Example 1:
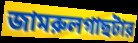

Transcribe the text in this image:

জামরুলগাছটার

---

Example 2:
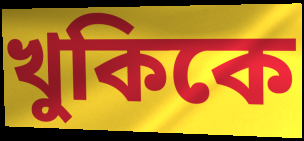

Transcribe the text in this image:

খুকিকে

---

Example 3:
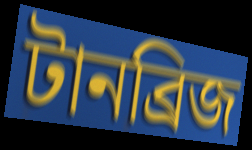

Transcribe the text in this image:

টানব্রিজ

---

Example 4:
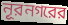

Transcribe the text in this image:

নূরনগরের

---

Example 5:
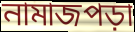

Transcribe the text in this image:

নামাজপড়া